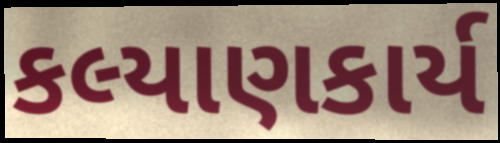
કલ્યાણકાર્ય